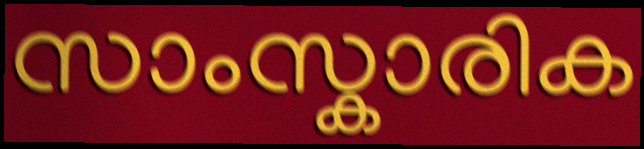
സാംസ്കാരിക